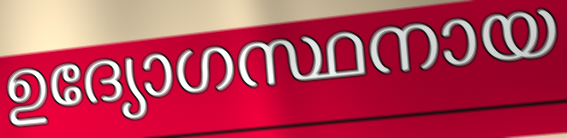
ഉദ്യോഗസ്ഥനായ